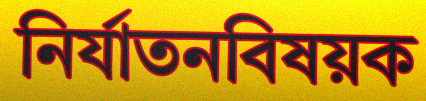
নির্যাতনবিষয়ক